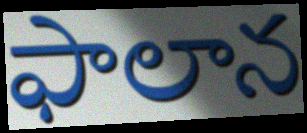
ఫాలాన